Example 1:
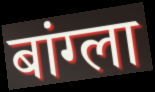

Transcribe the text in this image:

बांग्ला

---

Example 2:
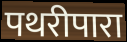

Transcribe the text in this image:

पथरीपारा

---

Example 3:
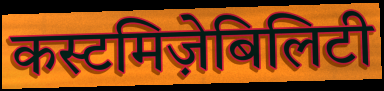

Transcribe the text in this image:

कस्टमिज़ेबिलिटी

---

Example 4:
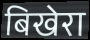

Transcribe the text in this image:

बिखेरा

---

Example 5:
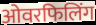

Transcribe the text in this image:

ओवरफिलिंग